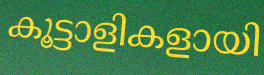
കൂട്ടാളികളായി